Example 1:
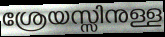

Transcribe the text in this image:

ശ്രേയസ്സിനുള്ള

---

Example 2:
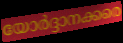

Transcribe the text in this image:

യോർദ്ദാനക്കരെ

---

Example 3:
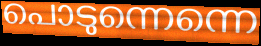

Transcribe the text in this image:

പൊടുന്നെന്നെ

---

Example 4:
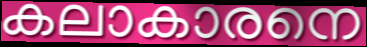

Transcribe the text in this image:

കലാകാരനെ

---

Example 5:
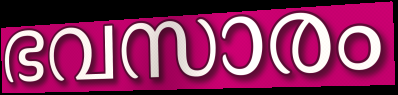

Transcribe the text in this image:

ഭവസാരം